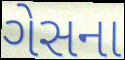
ગેસના